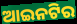
ଆଇନଟିର